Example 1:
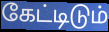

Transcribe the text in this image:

கேட்டிடும்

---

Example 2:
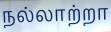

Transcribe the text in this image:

நல்லாற்றா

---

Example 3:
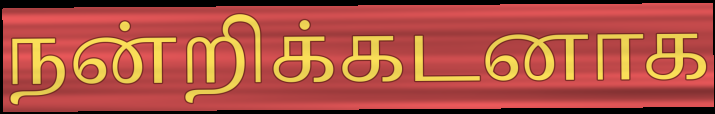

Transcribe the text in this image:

நன்றிக்கடனாக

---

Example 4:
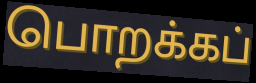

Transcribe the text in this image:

பொறக்கப்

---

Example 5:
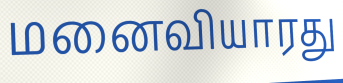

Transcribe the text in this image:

மனைவியாரது